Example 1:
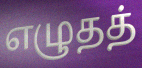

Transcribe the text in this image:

எழுதத்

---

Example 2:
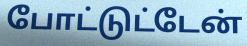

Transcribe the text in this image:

போட்டுட்டேன்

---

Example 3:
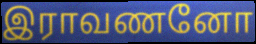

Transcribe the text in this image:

இராவணனோ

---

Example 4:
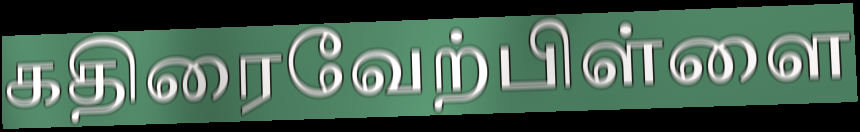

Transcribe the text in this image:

கதிரைவேற்பிள்ளை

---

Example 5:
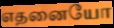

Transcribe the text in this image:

எதனையோ